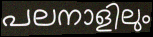
പലനാളിലും